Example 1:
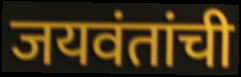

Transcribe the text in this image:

जयवंतांची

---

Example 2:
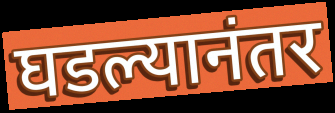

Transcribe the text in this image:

घडल्यानंतर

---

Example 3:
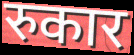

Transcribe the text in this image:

रुकार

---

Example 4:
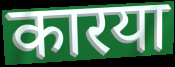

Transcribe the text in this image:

कारया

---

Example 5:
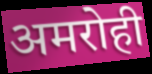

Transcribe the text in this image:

अमरोही